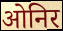
ओनिर